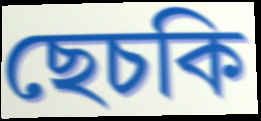
ছেচকি